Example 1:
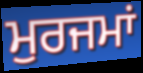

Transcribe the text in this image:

ਮੁਰਜਮਾਂ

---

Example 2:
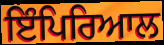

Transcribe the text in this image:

ਇੰਪਿਰਿਆਲ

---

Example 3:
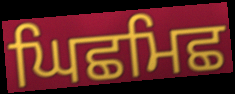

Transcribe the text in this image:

ਘਿਛਮਿਛ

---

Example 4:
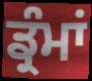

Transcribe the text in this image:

ਡ੍ਰੰਮਾਂ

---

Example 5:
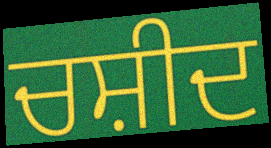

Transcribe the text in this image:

ਚਸ਼ੀਦ